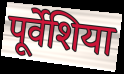
पूर्वेशिया